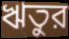
ঋতুর